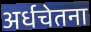
अर्धचेतना